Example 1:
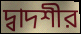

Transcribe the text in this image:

দ্বাদশীর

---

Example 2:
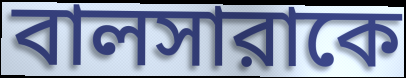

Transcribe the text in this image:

বালসারাকে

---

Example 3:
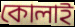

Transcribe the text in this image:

কোলাই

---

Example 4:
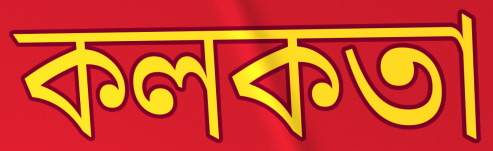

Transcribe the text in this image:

কলকতা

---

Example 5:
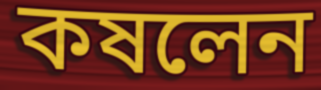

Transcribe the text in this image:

কষলেন